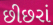
છીછરાં